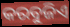
କରବୁଜିଏ